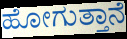
ಹೋಗುತ್ತಾನೆ